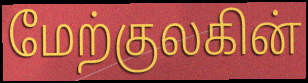
மேற்குலகின்